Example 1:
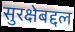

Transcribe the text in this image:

सुरक्षेबद्दल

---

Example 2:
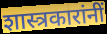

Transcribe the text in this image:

शास्त्रकारांनीं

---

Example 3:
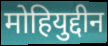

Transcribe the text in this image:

मोहियुद्दीन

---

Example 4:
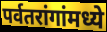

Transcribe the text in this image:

पर्वतरांगांमध्ये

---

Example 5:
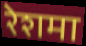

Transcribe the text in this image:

रेशमा